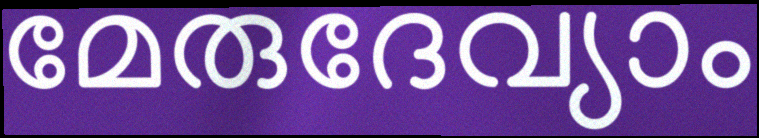
മേരുദേവ്യാം